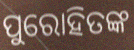
ପୁରୋହିତଙ୍କ